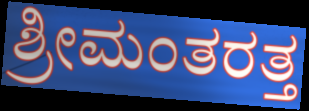
ಶ್ರೀಮಂತರತ್ತ